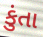
કુંતા